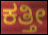
ಕತ್ತೀ